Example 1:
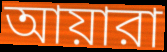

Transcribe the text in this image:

আয়ারা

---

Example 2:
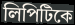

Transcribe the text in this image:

লিপিটিকে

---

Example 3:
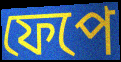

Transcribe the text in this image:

ফেপে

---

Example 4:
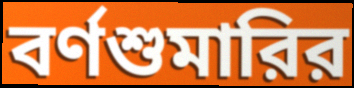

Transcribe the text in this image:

বর্ণশুমারির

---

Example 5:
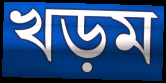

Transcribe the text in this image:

খড়ম